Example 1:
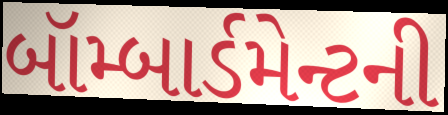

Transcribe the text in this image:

બૉમ્બાર્ડમેન્ટની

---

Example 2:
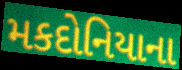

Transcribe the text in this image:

મકદોનિયાના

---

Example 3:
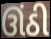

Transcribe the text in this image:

ઊંઠી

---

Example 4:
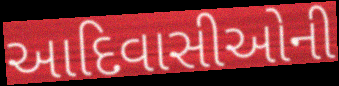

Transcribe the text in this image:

આદિવાસીઓની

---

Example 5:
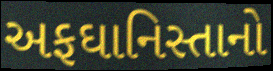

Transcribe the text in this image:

અફઘાનિસ્તાનો